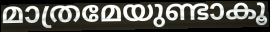
മാത്രമേയുണ്ടാകൂ